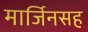
मार्जिनसह